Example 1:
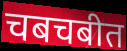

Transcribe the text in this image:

चबचबीत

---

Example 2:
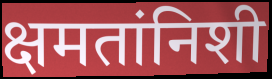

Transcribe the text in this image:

क्षमतांनिशी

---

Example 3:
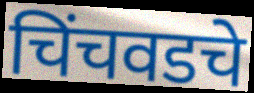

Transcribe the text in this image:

चिंचवडचे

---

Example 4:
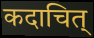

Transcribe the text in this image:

कदाचित्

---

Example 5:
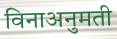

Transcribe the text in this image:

विनाअनुमती